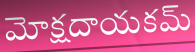
మోక్షదాయకమ్